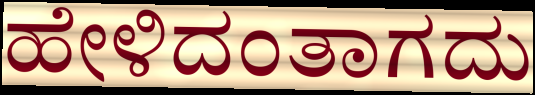
ಹೇಳಿದಂತಾಗದು